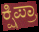
ಕ್ಷಿಪ್ರಾ